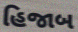
હિજાબ